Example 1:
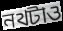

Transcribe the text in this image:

নথটাও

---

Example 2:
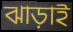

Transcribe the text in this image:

ঝাড়াই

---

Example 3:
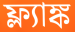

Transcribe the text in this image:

ফ্ল্যাঙ্ক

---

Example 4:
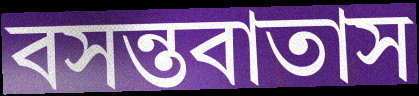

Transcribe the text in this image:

বসন্তবাতাস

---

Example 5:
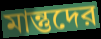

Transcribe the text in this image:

মান্তুদের